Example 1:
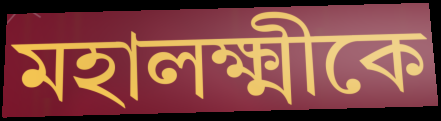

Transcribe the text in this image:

মহালক্ষ্মীকে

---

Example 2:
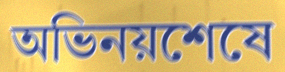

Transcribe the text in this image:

অভিনয়শেষে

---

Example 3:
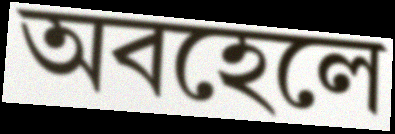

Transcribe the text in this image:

অবহেলে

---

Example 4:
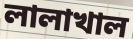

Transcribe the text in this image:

লালাখাল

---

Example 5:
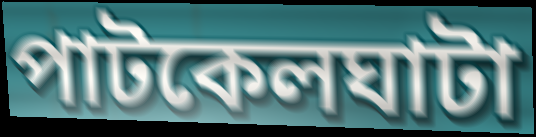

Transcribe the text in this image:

পাটকেলঘাটা